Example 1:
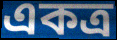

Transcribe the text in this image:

একত্ৰ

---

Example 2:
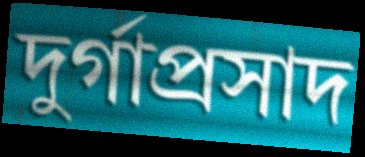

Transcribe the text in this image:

দুৰ্গাপ্ৰসাদ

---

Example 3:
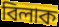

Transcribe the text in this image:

বিলাক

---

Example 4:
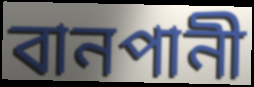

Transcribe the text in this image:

বানপানী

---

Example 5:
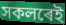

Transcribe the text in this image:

সকলৰেই